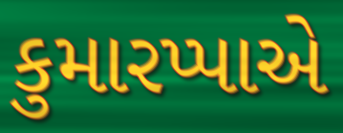
કુમારપ્પાએ